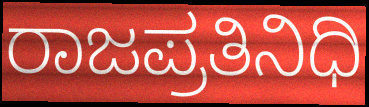
ರಾಜಪ್ರತಿನಿಧಿ